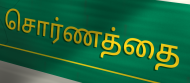
சொர்ணத்தை